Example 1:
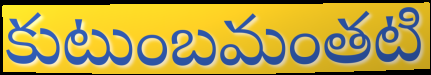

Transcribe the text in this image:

కుటుంబమంతటి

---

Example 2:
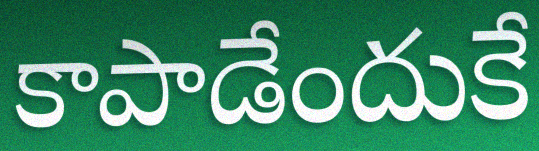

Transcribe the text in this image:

కాపాడేందుకే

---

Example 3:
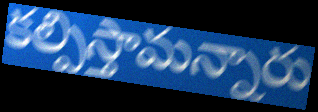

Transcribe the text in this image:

కల్పిస్తామన్నారు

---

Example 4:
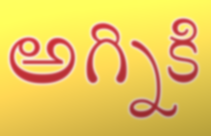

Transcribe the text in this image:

అగ్నికి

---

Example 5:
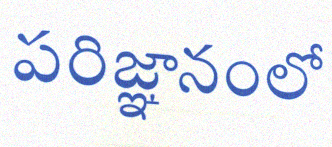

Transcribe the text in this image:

పరిజ్ఞానంలో